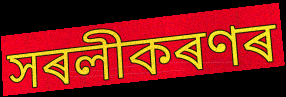
সৰলীকৰণৰ